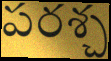
పరశ్చ